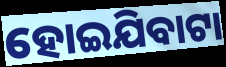
ହୋଇଯିବାଟା